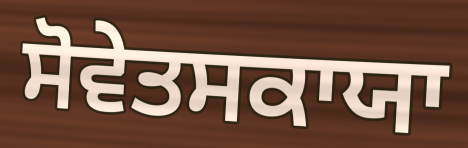
ਸੋਵੇਤਸਕਾਯਾ